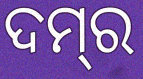
ଦମ୍‌ର